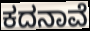
ಕದನಾವೆ